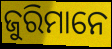
ଜୁରିମାନେ